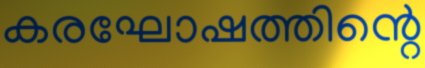
കരഘോഷത്തിന്റെ